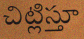
చిట్లిస్తూ